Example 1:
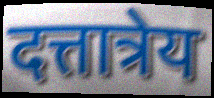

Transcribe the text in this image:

दत्तात्रेय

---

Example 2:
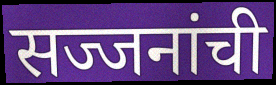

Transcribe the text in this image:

सज्जनांची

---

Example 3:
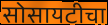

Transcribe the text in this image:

सोसायटीचा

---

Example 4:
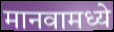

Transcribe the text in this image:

मानवामध्ये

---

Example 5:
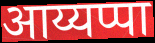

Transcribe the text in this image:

आय्यप्पा